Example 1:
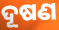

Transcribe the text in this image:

ଦୂଷଣ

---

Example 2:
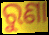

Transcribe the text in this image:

ରୁଣା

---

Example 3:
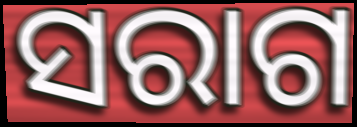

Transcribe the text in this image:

ସରାଗ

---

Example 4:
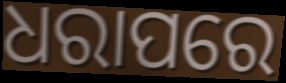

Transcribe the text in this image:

ଧରାପରେ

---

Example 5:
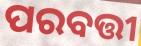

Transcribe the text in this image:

ପରବତ୍ତୀ